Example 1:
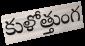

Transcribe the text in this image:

కుళోత్తుంగ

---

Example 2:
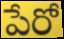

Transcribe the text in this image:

పేరో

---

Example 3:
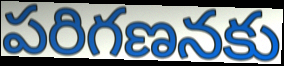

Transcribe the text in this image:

పరిగణనకు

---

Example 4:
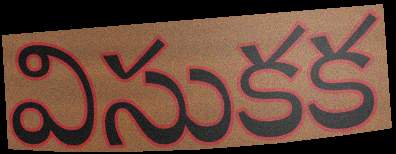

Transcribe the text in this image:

విసుకక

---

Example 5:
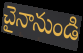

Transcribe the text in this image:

చైనానుండి